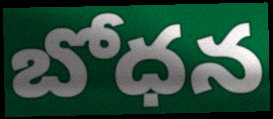
బోధన